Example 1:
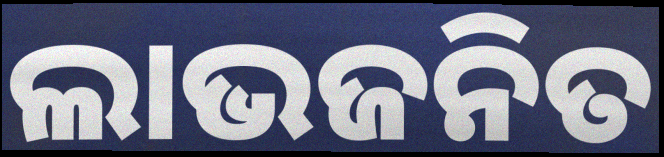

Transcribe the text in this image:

ଲାଭଜନିତ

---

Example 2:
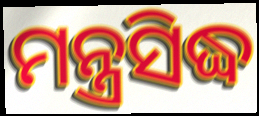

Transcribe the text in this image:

ମନ୍ତ୍ରସିଦ୍ଧ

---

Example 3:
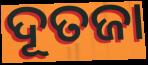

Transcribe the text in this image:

ଦୂତଜା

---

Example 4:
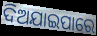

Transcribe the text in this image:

ଦିଅଯାଇପାରେ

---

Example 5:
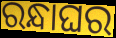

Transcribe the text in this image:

ରନ୍ଧାଘର